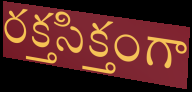
రక్తసిక్తంగా